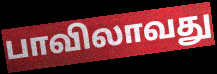
பாவிலாவது